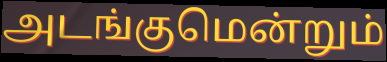
அடங்குமென்றும்